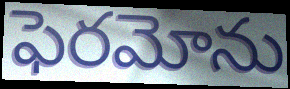
ఫెరమోను